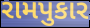
રામપુકાર